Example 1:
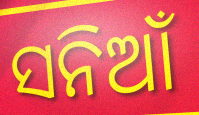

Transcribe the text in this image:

ସନିଆଁ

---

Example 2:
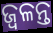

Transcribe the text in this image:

ଜ୍ଵଳନ୍ତ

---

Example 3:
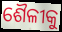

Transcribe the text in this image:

ଶୈଳୀକୁ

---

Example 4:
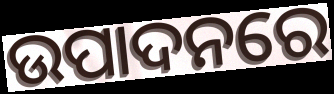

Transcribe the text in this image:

ଉପାଦନରେ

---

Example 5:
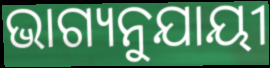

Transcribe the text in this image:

ଭାଗ୍ୟନୁଯାୟୀ